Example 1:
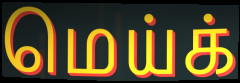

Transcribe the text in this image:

மெய்க்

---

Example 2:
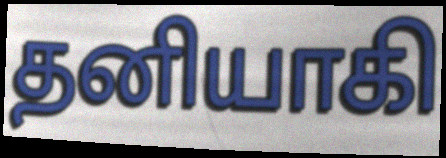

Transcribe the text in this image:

தனியாகி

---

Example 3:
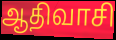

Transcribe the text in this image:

ஆதிவாசி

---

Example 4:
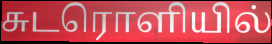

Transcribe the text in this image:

சுடரொளியில்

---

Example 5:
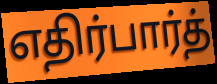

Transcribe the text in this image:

எதிர்பார்த்